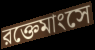
রক্তেমাংসে